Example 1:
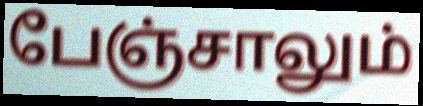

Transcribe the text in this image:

பேஞ்சாலும்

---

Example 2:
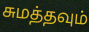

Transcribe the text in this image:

சுமத்தவும்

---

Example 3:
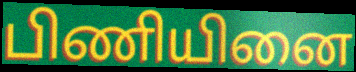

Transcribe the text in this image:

பிணியினை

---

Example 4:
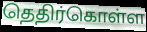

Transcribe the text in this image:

தெதிர்கொள்ள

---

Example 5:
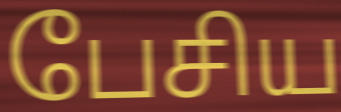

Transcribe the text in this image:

பேசிய